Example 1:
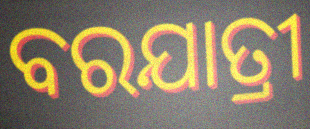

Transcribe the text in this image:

ବରଯାତ୍ରୀ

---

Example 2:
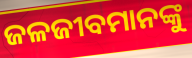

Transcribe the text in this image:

ଜଳଜୀବମାନଙ୍କୁ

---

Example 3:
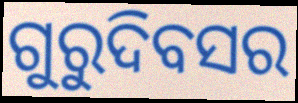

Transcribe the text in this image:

ଗୁରୁଦିବସର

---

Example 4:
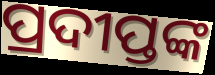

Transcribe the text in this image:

ପ୍ରଦୀପ୍ତଙ୍କ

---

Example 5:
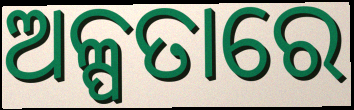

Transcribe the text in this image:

ଅଳ୍ପତାରେ